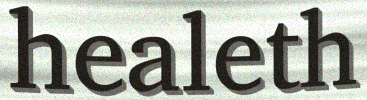
healeth